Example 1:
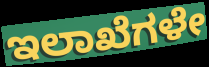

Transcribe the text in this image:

ಇಲಾಖೆಗಳೇ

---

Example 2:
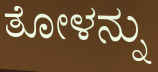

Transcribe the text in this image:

ತೋಳನ್ನು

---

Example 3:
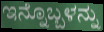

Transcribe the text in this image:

ಇನ್ನೊಬ್ಬಳನ್ನು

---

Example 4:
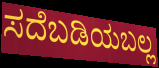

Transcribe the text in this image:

ಸದೆಬಡಿಯಬಲ್ಲ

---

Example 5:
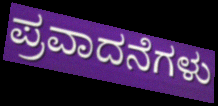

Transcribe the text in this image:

ಪ್ರವಾದನೆಗಳು